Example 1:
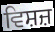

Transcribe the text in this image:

ਵਿਸ਼ਜ਼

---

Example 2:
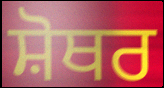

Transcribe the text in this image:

ਸ਼ੋਥਰ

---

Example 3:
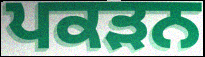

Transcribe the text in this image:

ਪਕੜਨ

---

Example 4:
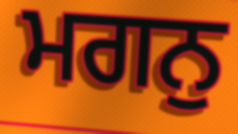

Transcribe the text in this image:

ਮਗਨੁ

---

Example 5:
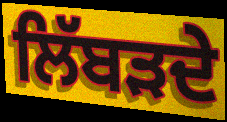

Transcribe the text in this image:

ਲਿੱਬੜਦੇ